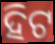
ହିଟ